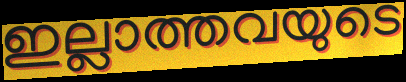
ഇല്ലാത്തവയുടെ